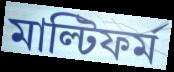
মাল্টিফর্ম